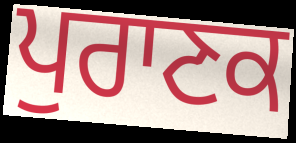
ਪੁਰਾਣਕ